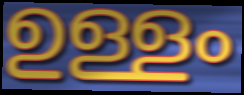
ഉള്ളം